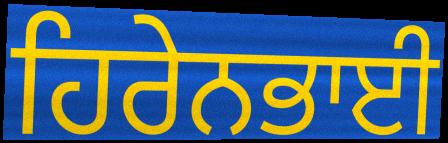
ਹਿਰੇਨਭਾਈ